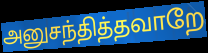
அனுசந்தித்தவாறே